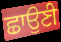
ਛਾਉਣੀ